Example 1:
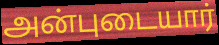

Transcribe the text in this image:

அன்புடையார்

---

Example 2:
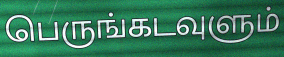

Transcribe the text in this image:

பெருங்கடவுளும்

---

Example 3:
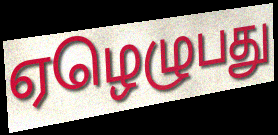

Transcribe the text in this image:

ஏழெழுபது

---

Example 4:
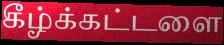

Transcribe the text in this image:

கீழ்க்கட்டளை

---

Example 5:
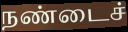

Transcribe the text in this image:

நண்டைச்